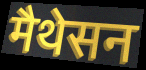
मैथेसन